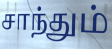
சாந்தும்